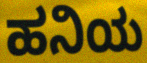
ಹನಿಯ